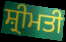
ਸ਼੍ਰੀਮਤੀ